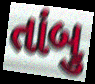
તાંબુ